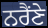
ਨਰੈਂਣੇ